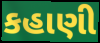
કહાણી